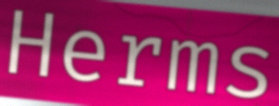
Herms